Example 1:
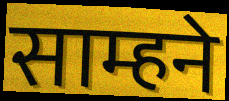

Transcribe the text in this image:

साम्हने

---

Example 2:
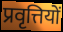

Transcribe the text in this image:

प्रवृत्तियों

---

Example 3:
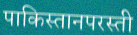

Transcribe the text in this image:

पाकिस्तानपरस्ती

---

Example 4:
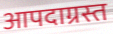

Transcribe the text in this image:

आपदाग्रस्त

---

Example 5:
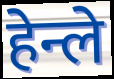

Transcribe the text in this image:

हेन्ले